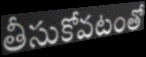
తీసుకోవటంతో